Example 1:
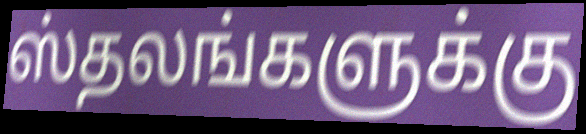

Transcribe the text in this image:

ஸ்தலங்களுக்கு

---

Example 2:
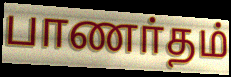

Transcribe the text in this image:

பாணர்தம்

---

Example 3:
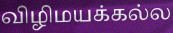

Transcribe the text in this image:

விழிமயக்கல்ல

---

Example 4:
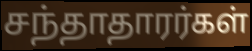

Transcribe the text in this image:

சந்தாதாரர்கள்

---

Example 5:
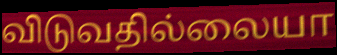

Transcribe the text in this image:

விடுவதில்லையா